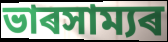
ভাৰসাম্যৰ